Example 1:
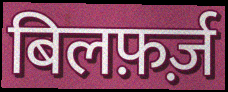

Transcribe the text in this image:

बिलफ़र्ज़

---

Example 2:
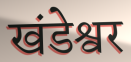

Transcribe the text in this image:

खंडेश्वर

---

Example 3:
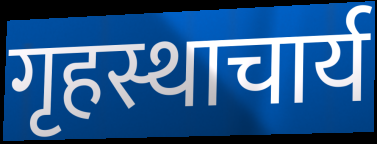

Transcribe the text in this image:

गृहस्थाचार्य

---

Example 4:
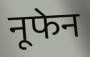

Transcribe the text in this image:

नूफेन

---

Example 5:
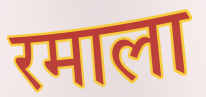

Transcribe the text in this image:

रमाला